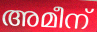
അമീന്